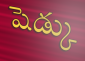
షెడ్కు